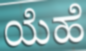
ಯೆಹೆ